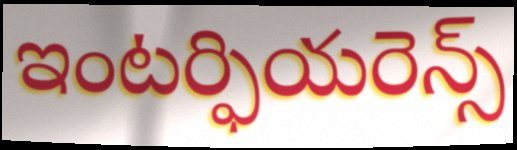
ఇంటర్ఫియరెన్స్